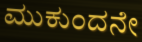
ಮುಕುಂದನೇ